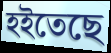
হইতেছে